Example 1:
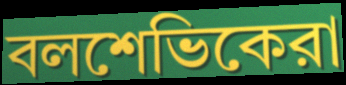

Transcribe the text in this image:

বলশেভিকেরা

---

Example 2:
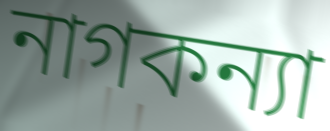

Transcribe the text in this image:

নাগকন্যা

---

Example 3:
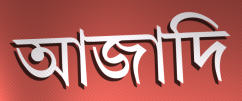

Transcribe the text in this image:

আজাদি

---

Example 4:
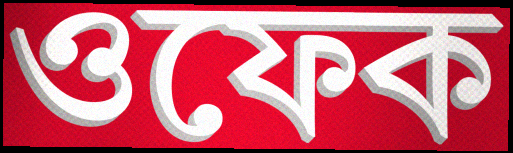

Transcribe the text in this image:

ওফেক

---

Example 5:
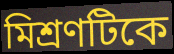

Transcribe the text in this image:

মিশ্রণটিকে